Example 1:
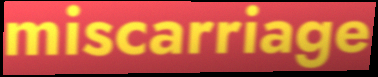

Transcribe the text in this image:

miscarriage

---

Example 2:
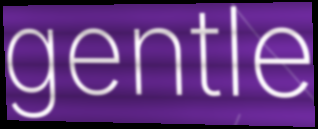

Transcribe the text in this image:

gentle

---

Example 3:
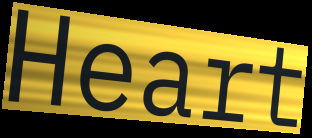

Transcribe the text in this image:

Heart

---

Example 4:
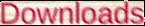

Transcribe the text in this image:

Downloads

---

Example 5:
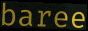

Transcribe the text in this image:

baree